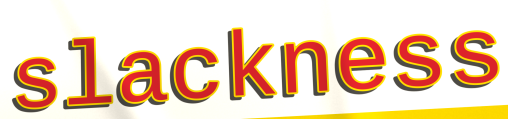
slackness